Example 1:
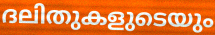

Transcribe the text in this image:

ദലിതുകളുടെയും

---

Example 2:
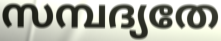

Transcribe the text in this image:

സമ്പദ്യതേ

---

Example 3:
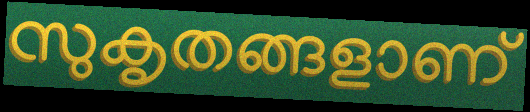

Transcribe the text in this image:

സുകൃതങ്ങളാണ്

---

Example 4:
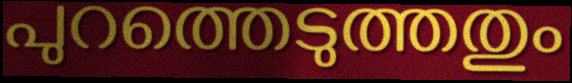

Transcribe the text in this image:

പുറത്തെടുത്തതും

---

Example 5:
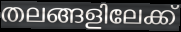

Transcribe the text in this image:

തലങ്ങളിലേക്ക്